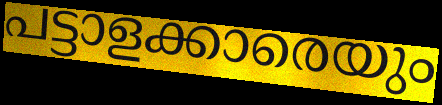
പട്ടാളക്കാരെയും